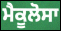
ਮੈਕੂਲੋਸਾ